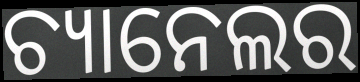
ଚ୍ୟାନେଲର